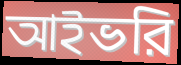
আইভরি